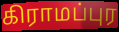
கிராமப்புர